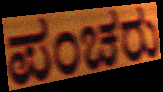
ಪಂಚರು